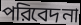
পরিবেদনা